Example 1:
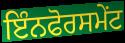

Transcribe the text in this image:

ਇੰਨਫੋਰਸਮੇਂਟ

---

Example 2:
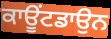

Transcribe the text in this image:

ਕਾਊਂਟਡਾਉਨ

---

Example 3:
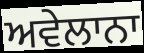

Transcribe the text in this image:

ਅਵੇਲਾਨਾ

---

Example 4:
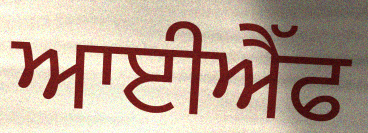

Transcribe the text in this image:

ਆਈਐੱਫ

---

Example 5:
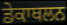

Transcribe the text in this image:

ਡੇਕਾਥਲਨ